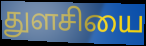
துளசியை